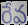
రేవ